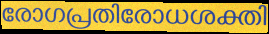
രോഗപ്രതിരോധശക്തി